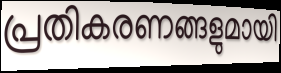
പ്രതികരണങ്ങളുമായി